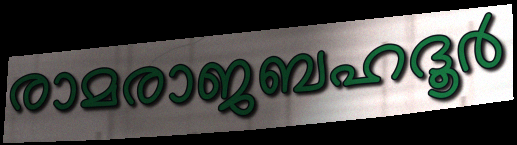
രാമരാജബഹദൂർ